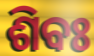
ଶିବଃ